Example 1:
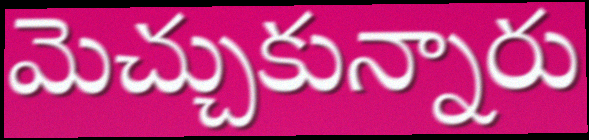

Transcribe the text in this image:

మెచ్చుకున్నారు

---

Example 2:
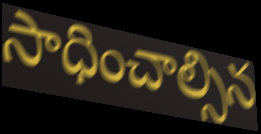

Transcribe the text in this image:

సాధించాల్సిన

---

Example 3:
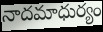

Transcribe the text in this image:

నాదమాధుర్యం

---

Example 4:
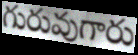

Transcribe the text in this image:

గురువుగారు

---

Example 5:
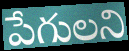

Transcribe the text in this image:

పేగులని